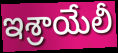
ఇశ్రాయేలీ